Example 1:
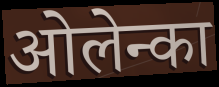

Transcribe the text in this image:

ओलेन्का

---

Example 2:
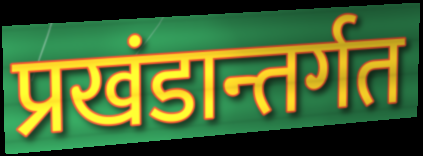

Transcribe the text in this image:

प्रखंडान्तर्गत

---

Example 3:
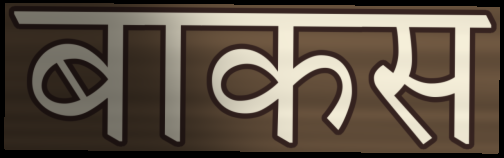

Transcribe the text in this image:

बाकस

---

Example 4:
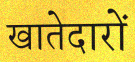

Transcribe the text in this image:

खातेदारों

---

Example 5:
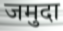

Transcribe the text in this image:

जमुदा